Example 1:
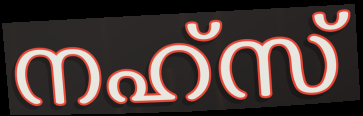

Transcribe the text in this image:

നഹ്സ്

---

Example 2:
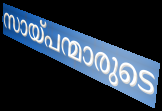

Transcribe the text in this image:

സായ്പന്മാരുടെ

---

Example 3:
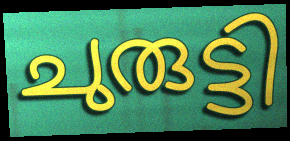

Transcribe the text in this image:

ചുരുട്ടി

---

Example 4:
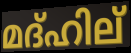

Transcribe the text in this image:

മദ്ഹില്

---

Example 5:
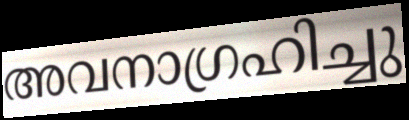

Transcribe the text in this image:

അവനാഗ്രഹിച്ചു